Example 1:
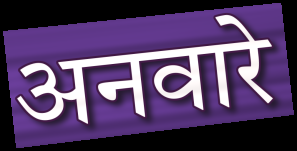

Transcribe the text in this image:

अनवारे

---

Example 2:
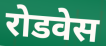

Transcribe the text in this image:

रोडवेस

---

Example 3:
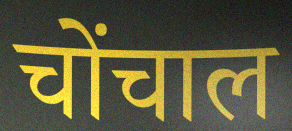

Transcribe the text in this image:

चोंचाल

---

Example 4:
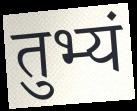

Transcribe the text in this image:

तुभ्यं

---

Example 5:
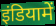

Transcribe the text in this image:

इंडियामें